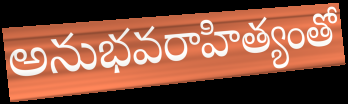
అనుభవరాహిత్యంతో